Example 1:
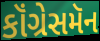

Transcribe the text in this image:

કૉંગ્રેસમૅન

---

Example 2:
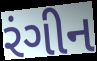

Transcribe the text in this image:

રંગીન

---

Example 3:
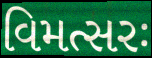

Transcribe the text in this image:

વિમત્સરઃ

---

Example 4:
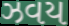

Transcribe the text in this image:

ઝવય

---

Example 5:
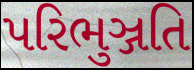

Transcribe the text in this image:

પરિભુઞ્જતિ